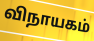
விநாயகம்